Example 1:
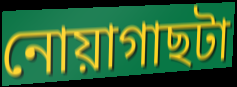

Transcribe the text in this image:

নোয়াগাছটা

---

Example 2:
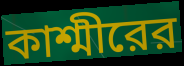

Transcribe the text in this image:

কাশ্মীরের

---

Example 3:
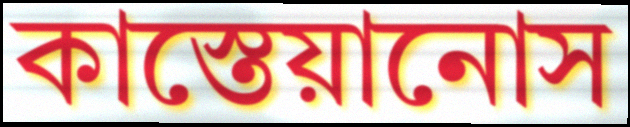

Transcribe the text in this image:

কাস্তেয়ানোস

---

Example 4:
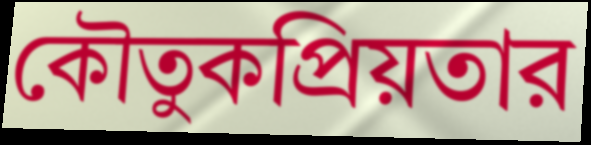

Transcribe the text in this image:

কৌতুকপ্রিয়তার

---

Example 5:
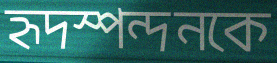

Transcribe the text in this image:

হৃদস্পন্দনকে